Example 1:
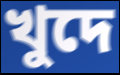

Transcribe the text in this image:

খুদে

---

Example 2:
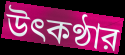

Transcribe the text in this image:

উৎকণ্ঠার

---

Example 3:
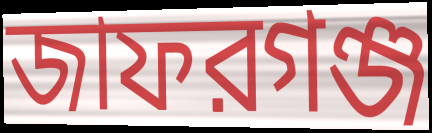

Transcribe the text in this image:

জাফরগঞ্জ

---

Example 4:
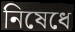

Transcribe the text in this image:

নিষেধে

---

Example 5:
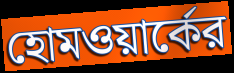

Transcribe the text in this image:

হোমওয়ার্কের